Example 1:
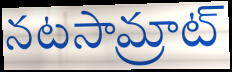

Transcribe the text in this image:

నటసామ్రాట్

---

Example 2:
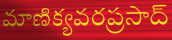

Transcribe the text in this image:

మాణిక్యవరప్రసాద్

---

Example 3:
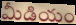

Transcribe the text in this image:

మీడియం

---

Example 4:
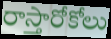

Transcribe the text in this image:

రాస్తారోకోలు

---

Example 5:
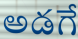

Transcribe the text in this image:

అడగే